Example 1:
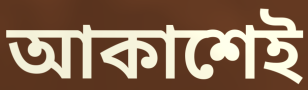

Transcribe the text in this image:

আকাশেই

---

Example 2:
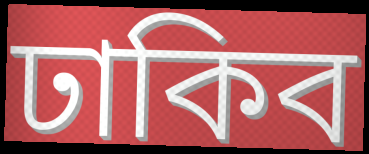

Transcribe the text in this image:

ঢাকিব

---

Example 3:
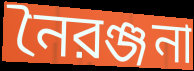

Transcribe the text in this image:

নৈরঞ্জনা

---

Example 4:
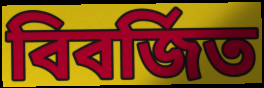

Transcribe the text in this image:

বিবর্জিত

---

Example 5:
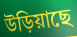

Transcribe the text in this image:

উড়িয়াছে